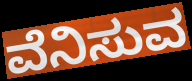
ವೆನಿಸುವ